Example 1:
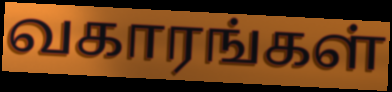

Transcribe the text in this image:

வகாரங்கள்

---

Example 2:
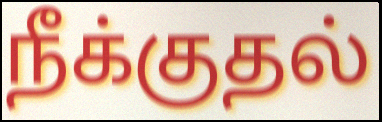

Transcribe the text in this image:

நீக்குதல்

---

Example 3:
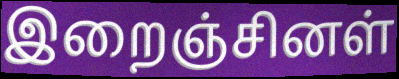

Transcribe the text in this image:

இறைஞ்சினள்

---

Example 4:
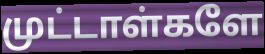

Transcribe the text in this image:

முட்டாள்களே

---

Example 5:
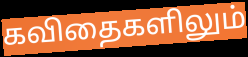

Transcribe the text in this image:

கவிதைகளிலும்